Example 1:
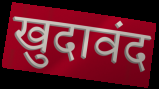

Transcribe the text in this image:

खुदावंद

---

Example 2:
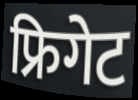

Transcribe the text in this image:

फ्रिगेट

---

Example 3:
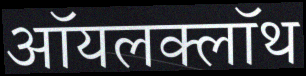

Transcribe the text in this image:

ऑयलक्लॉथ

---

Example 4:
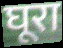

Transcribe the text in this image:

घूरा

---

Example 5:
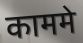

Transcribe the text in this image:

काममे